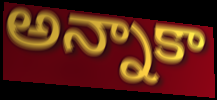
అన్నాకా